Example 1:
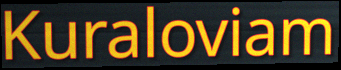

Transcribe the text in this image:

Kuraloviam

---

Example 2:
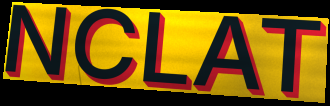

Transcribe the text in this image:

NCLAT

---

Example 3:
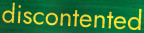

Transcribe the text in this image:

discontented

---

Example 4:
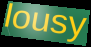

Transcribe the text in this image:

lousy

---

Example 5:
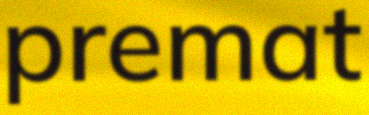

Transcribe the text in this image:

premat